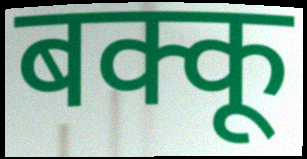
बक्कू